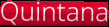
Quintana